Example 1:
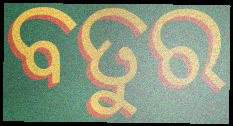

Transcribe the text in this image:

ବତୁର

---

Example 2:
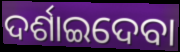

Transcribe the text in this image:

ଦର୍ଶାଇଦେବା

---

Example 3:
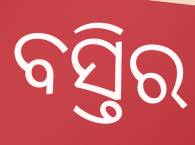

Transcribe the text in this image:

ବସ୍ତିର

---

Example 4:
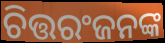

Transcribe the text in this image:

ଚିତ୍ତରଂଜନଙ୍କ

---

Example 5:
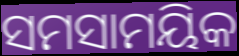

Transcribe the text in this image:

ସମସାମୟିକ